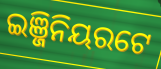
ଇଞ୍ଜିନିୟରଟେ